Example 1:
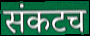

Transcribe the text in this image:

संकटच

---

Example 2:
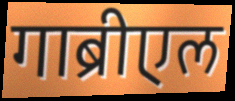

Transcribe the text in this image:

गाब्रीएल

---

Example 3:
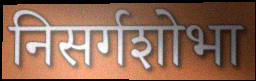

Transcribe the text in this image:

निसर्गशोभा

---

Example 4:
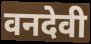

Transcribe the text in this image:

वनदेवी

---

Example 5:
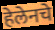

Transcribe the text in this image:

हेलेनचे